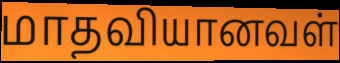
மாதவியானவள்